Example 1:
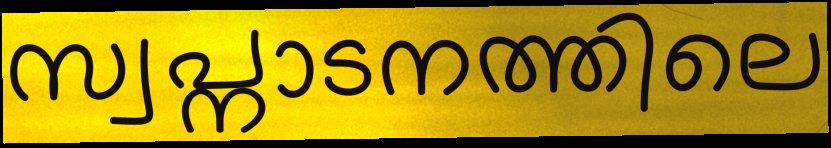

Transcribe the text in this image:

സ്വപ്നാടനത്തിലെ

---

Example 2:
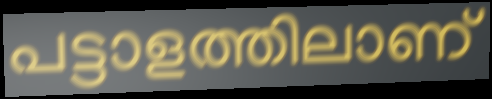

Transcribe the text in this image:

പട്ടാളത്തിലാണ്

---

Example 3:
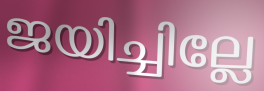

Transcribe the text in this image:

ജയിച്ചില്ലേ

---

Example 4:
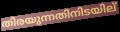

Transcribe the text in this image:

തിരയുന്നതിനിടയില്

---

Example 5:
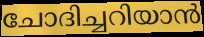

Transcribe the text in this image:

ചോദിച്ചറിയാൻ